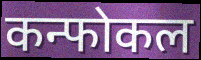
कन्फोकल